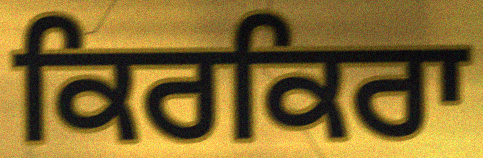
ਕਿਰਕਿਰਾ